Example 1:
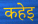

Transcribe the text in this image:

कहेइ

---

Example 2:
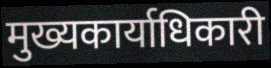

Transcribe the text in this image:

मुख्यकार्याधिकारी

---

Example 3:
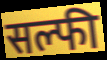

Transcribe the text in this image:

सल्फी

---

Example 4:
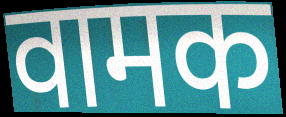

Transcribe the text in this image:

वामक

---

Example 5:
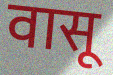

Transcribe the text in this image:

वासू